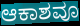
ಆಕಾಶವೂ